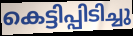
കെട്ടിപ്പിടിച്ചു